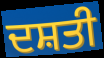
ਦਸ਼ਤੀ